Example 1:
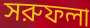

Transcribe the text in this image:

সৰুফলা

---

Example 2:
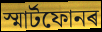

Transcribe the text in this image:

স্মাৰ্টফোনৰ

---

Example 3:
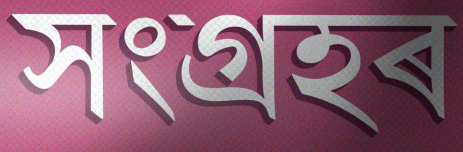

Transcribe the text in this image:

সংগ্ৰহৰ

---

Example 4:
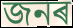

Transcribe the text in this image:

জনৰ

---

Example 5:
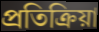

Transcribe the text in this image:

প্ৰতিক্ৰিয়া